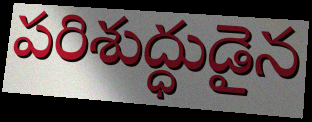
పరిశుద్ధుడైన